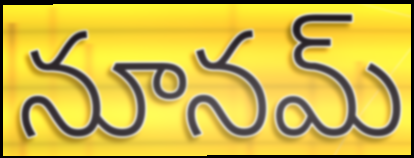
నూనమ్